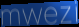
mwezi